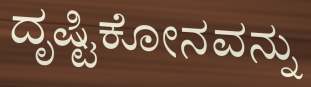
ದೃಷ್ಟಿಕೋನವನ್ನು